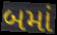
બમાં